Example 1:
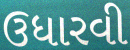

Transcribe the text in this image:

ઉધારવી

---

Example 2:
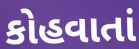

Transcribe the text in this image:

કોહવાતાં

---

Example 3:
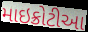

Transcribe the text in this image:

માઇક્રોટીઆ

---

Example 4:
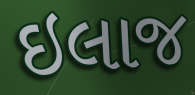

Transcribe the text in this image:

ઇલાજ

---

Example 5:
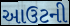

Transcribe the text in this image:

આઉટની